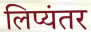
लिप्यंतर